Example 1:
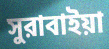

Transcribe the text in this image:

সুরাবাইয়া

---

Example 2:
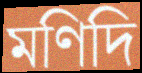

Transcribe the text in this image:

মণিদি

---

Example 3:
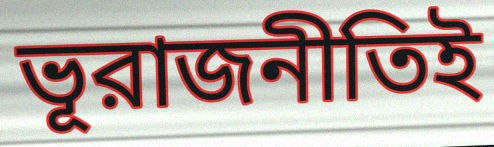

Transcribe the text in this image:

ভূরাজনীতিই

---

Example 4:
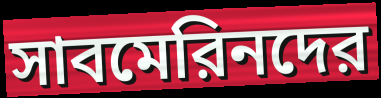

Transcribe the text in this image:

সাবমেরিনদের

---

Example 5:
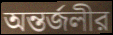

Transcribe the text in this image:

অন্তর্জলীর